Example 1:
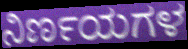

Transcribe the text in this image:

ನಿರ್ಣಯಗಳ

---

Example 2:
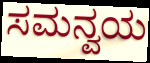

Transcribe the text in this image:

ಸಮನ್ವಯ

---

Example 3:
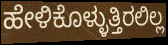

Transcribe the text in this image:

ಹೇಳಿಕೊಳ್ಳುತ್ತಿರಲಿಲ್ಲ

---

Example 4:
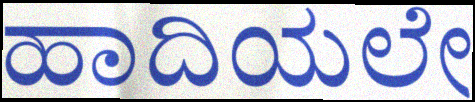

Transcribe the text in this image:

ಹಾದಿಯಲೇ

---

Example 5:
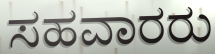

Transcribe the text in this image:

ಸಹವಾರರು